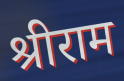
श्रीराम